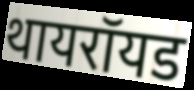
थायरॉयड